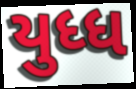
યુધ્ધ